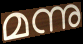
മന്നു